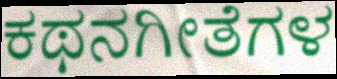
ಕಥನಗೀತೆಗಳ